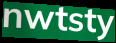
nwtsty